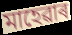
মাহেৱাৰ